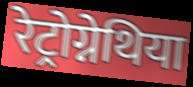
रेट्रोग्नेथिया